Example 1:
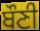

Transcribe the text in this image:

ਬੌਣੀ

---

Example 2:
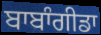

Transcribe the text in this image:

ਬਾਬਾੰਗੀਡਾ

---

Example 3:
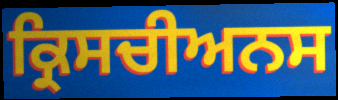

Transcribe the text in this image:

ਕ੍ਰਿਸਚੀਅਨਸ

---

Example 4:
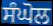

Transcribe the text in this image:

ਸੰਘੋਲ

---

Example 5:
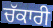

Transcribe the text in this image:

ਚੱਕਾਰੀ